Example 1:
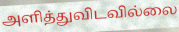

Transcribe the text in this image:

அளித்துவிடவில்லை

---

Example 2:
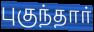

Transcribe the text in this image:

புகுந்தார்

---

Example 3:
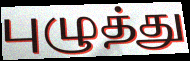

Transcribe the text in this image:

புழுத்து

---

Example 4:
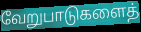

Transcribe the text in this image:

வேறுபாடுகளைத்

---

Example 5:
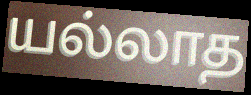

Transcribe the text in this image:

யல்லாத